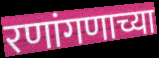
रणांगणाच्या